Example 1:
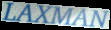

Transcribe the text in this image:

LAXMAN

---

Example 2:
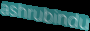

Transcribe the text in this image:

ashrubindu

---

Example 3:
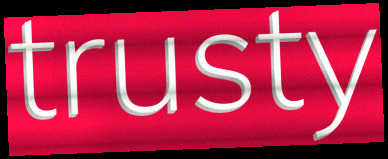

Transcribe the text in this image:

trusty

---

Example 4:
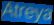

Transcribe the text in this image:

Atreya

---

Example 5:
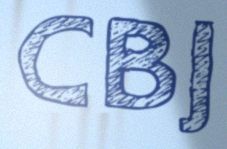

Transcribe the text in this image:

CBJ